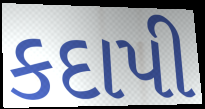
કદાપી